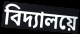
বিদ্যালয়ে